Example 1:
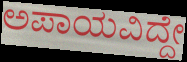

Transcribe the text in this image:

ಅಪಾಯವಿದ್ದೇ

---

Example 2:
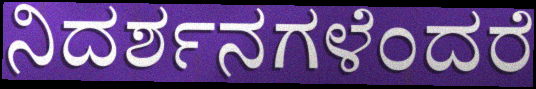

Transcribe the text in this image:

ನಿದರ್ಶನಗಳೆಂದರೆ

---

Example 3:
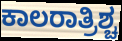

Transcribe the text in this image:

ಕಾಲರಾತ್ರಿಶ್ಚ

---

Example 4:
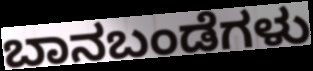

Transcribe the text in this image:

ಬಾನಬಂಡೆಗಳು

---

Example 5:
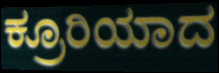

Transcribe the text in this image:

ಕ್ರೂರಿಯಾದ